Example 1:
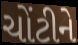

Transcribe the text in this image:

ચોંટીને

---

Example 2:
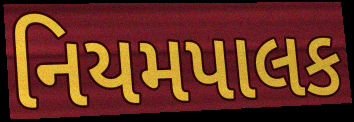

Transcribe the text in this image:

નિયમપાલક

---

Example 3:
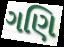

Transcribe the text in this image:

ગણિ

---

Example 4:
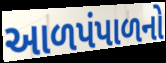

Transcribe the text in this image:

આળપંપાળનો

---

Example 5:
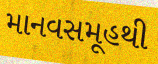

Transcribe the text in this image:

માનવસમૂહથી